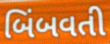
બિંબવતી